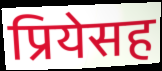
प्रियेसह